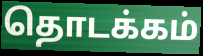
தொடக்கம்